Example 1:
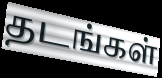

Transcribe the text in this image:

தடங்கள்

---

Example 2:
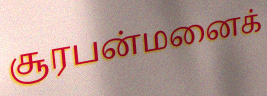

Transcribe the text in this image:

சூரபன்மனைக்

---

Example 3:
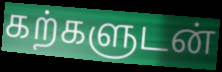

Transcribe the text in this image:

கற்களுடன்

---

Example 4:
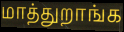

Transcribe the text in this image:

மாத்துறாங்க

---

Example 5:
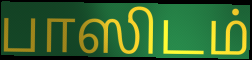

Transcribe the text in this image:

பாஸிடம்